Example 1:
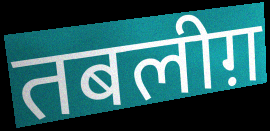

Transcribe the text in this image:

तबलीग़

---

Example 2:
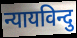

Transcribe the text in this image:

न्यायविन्दु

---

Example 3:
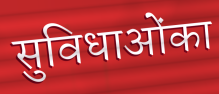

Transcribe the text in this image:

सुविधाओंका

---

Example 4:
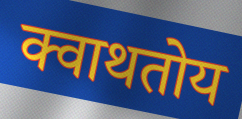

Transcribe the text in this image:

क्वाथतोय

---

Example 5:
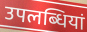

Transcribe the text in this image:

उपलब्धियां